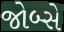
જોબ્સે